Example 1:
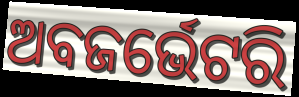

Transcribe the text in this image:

ଅବଜର୍ଭେଟରି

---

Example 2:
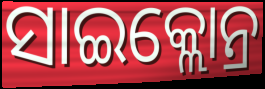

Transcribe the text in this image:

ସାଇକ୍ଲୋନ୍ର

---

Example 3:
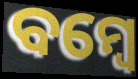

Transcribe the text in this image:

ବମ୍ୱେ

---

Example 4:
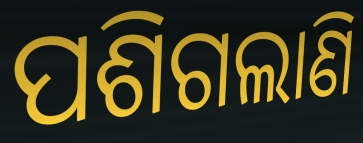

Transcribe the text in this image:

ପଶିଗଲାଣି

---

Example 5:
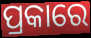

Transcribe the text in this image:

ପ୍ରକାରେ